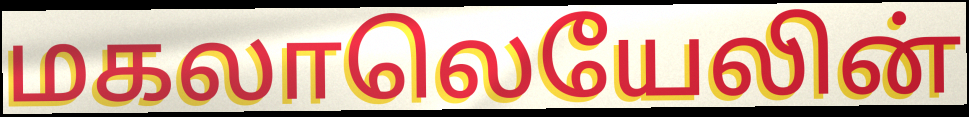
மகலாலெயேலின்